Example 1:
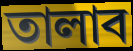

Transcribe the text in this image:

তালাব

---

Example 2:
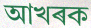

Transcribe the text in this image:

আখৰক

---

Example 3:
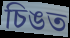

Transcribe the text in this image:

চিঙত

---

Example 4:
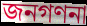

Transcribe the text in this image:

জনগণনা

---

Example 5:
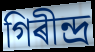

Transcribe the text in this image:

গিৰীন্দ্ৰ